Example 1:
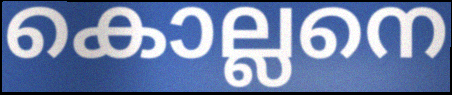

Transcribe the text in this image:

കൊല്ലനെ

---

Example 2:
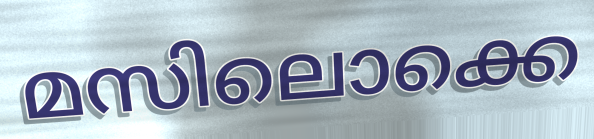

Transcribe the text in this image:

മസിലൊക്കെ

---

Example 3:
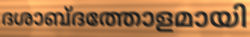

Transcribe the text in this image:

ദശാബ്ദത്തോളമായി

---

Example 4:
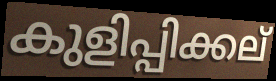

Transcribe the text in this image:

കുളിപ്പിക്കല്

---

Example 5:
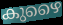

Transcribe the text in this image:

കുഴൈ